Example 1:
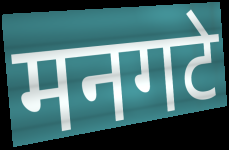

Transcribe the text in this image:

मनगटे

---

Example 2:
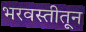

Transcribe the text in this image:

भरवस्तीतून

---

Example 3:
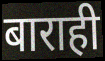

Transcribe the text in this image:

बाराही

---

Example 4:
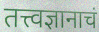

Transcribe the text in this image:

तत्त्वज्ञानाचं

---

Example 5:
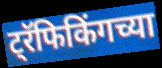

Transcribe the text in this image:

ट्रॅफिकिंगच्या